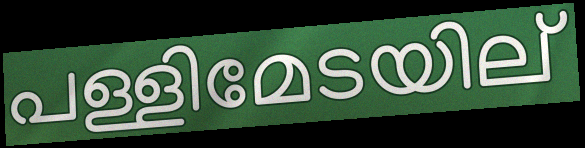
പള്ളിമേടയില്